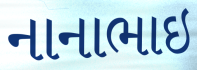
નાનાભાઇ